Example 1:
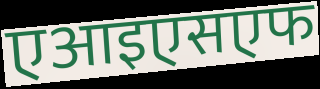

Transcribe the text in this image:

एआइएसएफ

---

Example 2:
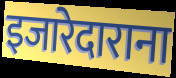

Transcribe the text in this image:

इजारेदाराना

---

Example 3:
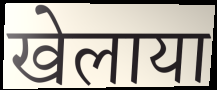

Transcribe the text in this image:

खेलाया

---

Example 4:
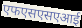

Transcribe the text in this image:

एफएसएसएआई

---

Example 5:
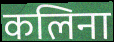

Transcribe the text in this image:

कलिना